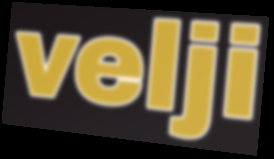
velji